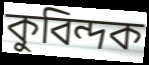
কুবিন্দক